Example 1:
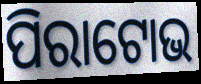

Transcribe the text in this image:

ପିରାଟୋଭ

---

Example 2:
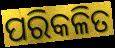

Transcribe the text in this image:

ପରିକଳିତ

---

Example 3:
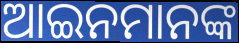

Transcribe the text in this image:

ଆଇନମାନଙ୍କ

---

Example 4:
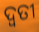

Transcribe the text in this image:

ଦ୍ଵତୀ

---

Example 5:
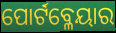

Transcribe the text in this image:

ପୋର୍ଟବ୍ଳେୟାର